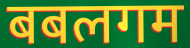
बबलगम